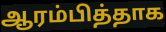
ஆரம்பித்தாக